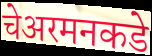
चेअरमनकडे